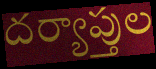
దర్యాప్తుల